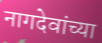
नागदेवांच्या